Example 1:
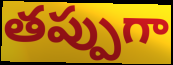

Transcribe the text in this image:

తప్పుగా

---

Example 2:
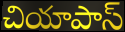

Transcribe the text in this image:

చియాపాస్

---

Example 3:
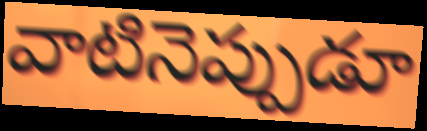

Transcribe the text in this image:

వాటినెప్పుడూ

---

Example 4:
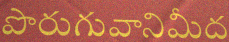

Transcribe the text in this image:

పొరుగువానిమీద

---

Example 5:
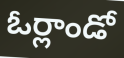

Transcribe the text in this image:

ఓర్లాండో